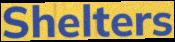
Shelters